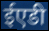
ईएडी